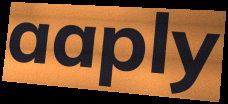
aaply